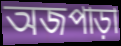
অজপাড়া